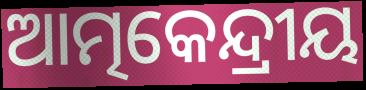
ଆତ୍ମକେନ୍ଦ୍ରୀୟ